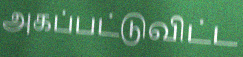
அகப்பட்டுவிட்ட